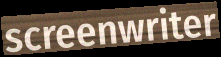
screenwriter